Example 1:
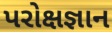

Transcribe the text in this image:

પરોક્ષજ્ઞાન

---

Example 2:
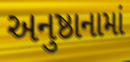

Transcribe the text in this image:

અનુષ્ઠાનામાં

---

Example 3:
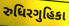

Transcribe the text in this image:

રુધિરગુહિકા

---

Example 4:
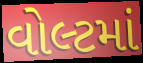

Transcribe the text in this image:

વોલ્ટમાં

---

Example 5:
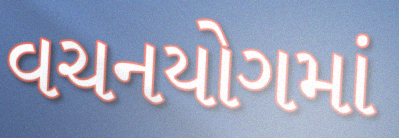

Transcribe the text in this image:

વચનયોગમાં